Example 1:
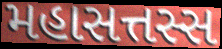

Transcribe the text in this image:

મહાસત્તસ્સ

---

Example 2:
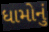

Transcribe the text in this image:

ધામોનું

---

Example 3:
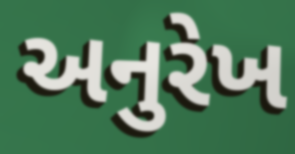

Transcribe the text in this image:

અનુરેખ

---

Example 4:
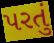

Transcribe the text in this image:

પરતું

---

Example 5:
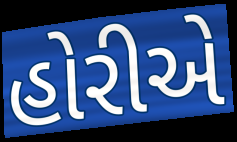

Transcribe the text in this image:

હોરીએ